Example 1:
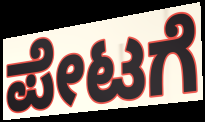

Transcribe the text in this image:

ಪೇಟಗೆ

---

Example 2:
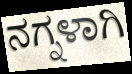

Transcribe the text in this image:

ನಗ್ನಳಾಗಿ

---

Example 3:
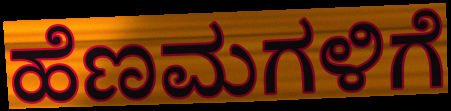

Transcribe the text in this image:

ಹೆಣಮಗಳಿಗೆ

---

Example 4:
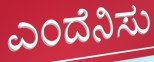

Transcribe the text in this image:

ಎಂದೆನಿಸು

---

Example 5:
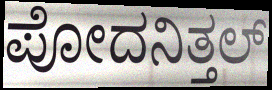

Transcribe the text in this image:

ಪೋದನಿತ್ತಲ್